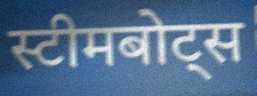
स्टीमबोट्स